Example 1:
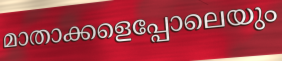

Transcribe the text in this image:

മാതാക്കളെപ്പോലെയും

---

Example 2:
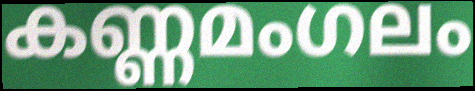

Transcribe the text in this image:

കണ്ണമംഗലം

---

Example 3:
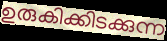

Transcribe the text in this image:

ഉരുകിക്കിടക്കുന്ന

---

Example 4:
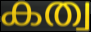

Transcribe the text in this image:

കത്വ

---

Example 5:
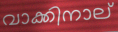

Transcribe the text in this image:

വാക്കിനാല്